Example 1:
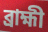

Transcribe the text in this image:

ব্ৰাহ্মী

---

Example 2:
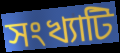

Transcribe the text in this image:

সংখ্যাটি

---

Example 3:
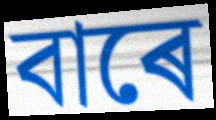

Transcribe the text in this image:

বাৰে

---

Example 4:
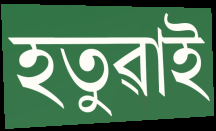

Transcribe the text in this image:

হতুৱাই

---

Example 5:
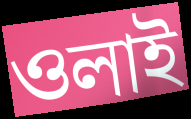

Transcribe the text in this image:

ওলাই